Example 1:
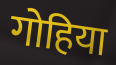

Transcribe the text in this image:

गोहिया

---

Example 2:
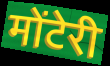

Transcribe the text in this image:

मोंटेरी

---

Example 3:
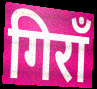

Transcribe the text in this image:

गिराँ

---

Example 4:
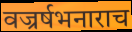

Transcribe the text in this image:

वज्रर्षभनाराच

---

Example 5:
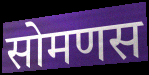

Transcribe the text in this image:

सोमणस